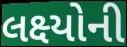
લક્ષ્યોની